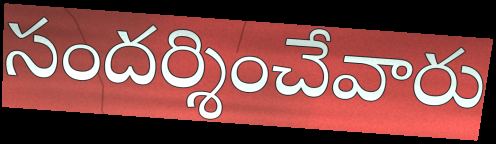
సందర్శించేవారు